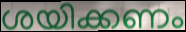
ശയിക്കണം